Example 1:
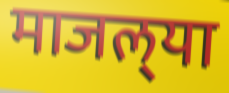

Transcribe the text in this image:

माजल्या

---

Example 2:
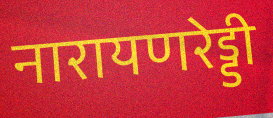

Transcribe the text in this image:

नारायणरेड्डी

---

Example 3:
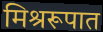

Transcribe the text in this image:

मिश्ररूपात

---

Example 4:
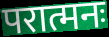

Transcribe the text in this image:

परात्मनः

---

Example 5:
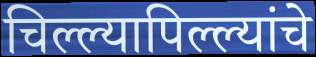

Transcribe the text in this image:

चिल्ल्यापिल्ल्यांचे